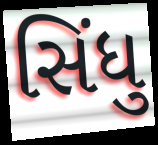
સિંધુ